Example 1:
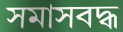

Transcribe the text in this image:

সমাসবদ্ধ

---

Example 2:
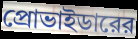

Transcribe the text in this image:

প্রোভাইডারের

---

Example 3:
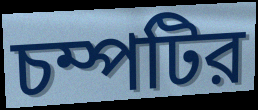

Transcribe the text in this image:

চম্পটির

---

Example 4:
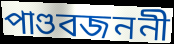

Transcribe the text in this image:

পাণ্ডবজননী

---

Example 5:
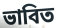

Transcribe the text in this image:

ভাবিত